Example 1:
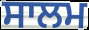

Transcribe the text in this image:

ਸਾਲਮ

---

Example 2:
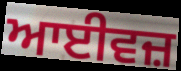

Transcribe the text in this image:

ਆਈਵਜ਼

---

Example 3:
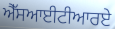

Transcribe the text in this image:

ਐੱਸਆਈਟੀਆਰਏ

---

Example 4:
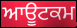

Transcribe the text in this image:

ਆਊਟਕਮ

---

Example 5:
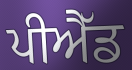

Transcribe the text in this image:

ਪੀਐੱਡ